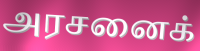
அரசனைக்